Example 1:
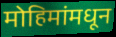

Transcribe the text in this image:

मोहिमांमधून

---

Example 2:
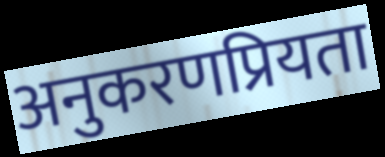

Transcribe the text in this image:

अनुकरणप्रियता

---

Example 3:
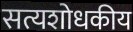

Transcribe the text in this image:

सत्यशोधकीय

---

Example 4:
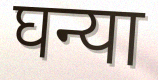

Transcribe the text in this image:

घन्या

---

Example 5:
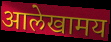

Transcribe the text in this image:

आलेखामय